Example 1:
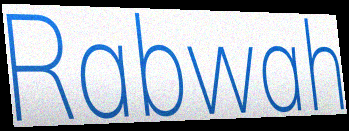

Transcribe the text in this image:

Rabwah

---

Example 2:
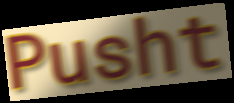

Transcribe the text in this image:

Pusht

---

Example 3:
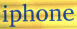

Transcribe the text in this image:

iphone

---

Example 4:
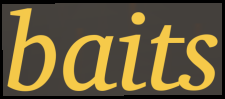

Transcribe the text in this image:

baits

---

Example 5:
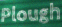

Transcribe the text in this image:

Plough